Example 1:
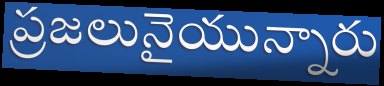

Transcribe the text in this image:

ప్రజలునైయున్నారు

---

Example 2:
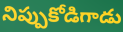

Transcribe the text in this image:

నిప్పుకోడిగాడు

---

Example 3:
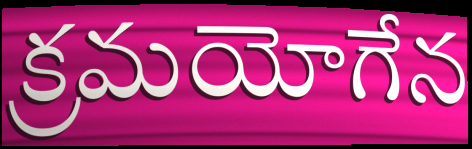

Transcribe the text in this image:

క్రమయోగేన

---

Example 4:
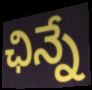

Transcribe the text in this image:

ఛిన్నే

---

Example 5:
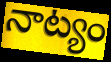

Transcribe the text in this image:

నాట్యం